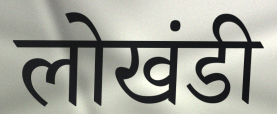
लोखंडी